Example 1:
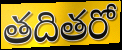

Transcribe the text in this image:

తదితరో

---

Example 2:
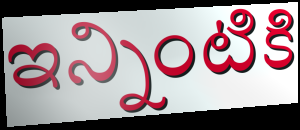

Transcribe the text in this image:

ఇన్నింటికి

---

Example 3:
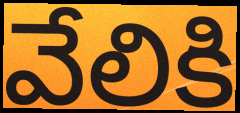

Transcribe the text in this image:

వేలికి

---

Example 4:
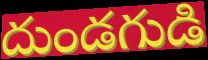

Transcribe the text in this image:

దుండగుడి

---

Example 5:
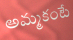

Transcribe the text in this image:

అమ్మకంటే